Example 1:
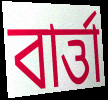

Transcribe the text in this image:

বার্ত্তা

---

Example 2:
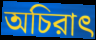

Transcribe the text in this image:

অচিরাৎ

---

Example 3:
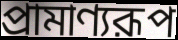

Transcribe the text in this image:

প্রামাণ্যরূপ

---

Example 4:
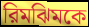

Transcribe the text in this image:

রিমঝিমকে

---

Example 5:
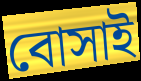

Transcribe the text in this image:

বোসাই